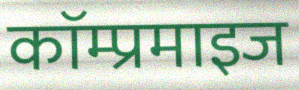
कॉम्प्रमाइज